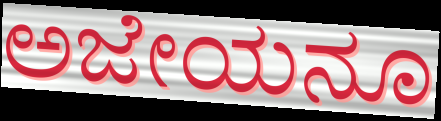
ಅಜೇಯನೂ